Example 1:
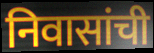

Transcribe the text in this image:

निवासांची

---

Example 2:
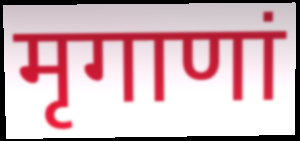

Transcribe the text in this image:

मृगाणां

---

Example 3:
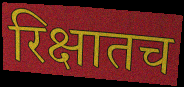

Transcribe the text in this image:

रिक्षातच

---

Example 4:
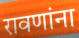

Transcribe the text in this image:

रावणांना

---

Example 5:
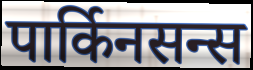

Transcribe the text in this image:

पार्किनसन्स